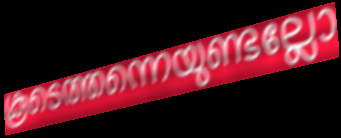
കൂടെത്തന്നെയുണ്ടല്ലോ